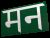
मन